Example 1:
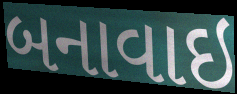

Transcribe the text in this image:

બનાવાઇ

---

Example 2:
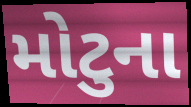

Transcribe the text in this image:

મોટુના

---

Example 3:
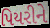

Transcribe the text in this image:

પિયરીને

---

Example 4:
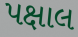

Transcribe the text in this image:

પક્ષાલ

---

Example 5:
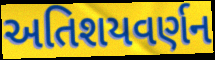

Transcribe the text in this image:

અતિશયવર્ણન